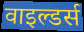
वाइल्डर्स